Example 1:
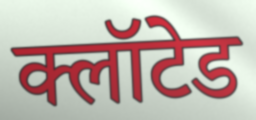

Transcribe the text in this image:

क्लॉटेड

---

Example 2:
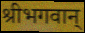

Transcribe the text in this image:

श्रीभगवान्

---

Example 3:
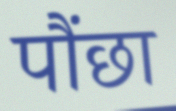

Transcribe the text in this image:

पौंछा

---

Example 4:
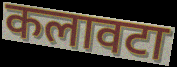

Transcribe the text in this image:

कलावटा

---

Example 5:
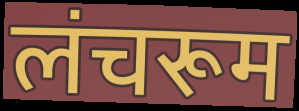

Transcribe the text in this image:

लंचरूम